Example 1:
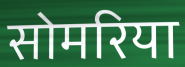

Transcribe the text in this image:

सोमरिया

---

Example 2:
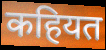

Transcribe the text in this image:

कहियत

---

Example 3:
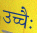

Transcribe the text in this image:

उच्चैः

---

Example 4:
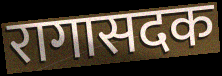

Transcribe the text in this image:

रागासदक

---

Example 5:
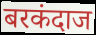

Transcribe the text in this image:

बरकंदाज